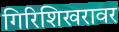
गिरिशिखरावर